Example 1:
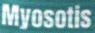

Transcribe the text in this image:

Myosotis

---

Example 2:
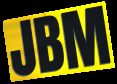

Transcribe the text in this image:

JBM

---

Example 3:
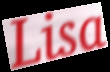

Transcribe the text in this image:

Lisa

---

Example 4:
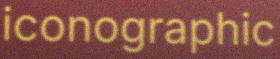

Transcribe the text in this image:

iconographic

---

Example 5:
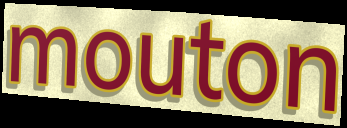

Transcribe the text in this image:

mouton